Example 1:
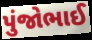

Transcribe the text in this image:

પુંજોભાઈ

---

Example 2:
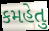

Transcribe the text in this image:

કમહેતુ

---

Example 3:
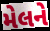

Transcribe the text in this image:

મેલને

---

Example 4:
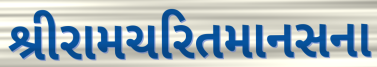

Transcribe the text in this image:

શ્રીરામચરિતમાનસના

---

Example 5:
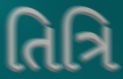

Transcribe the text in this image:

તિત્રિ